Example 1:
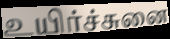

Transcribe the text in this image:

உயிர்ச்சுனை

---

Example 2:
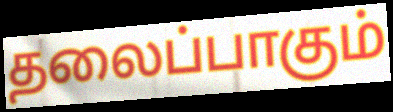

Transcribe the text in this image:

தலைப்பாகும்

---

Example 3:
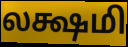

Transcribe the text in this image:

லக்ஷமி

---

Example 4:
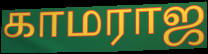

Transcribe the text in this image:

காமராஜ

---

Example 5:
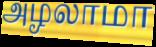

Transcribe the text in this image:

அழலாமா